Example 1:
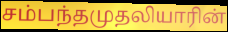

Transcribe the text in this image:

சம்பந்தமுதலியாரின்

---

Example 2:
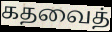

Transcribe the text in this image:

கதவைத்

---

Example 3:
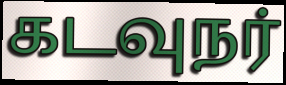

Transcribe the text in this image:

கடவுநர்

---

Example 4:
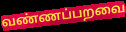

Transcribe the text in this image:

வண்ணப்பறவை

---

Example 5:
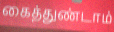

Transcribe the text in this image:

கைத்துண்டாம்